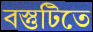
বস্তুটিতে